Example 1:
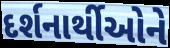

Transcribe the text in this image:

દર્શનાર્થીઓને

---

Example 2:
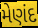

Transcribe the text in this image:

મેણંદ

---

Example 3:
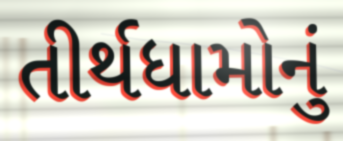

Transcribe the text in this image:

તીર્થધામોનું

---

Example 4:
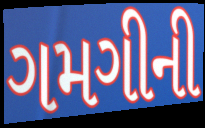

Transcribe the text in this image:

ગમગીની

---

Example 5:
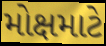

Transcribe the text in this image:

મોક્ષમાટે